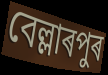
বেল্লাৰপুৰ